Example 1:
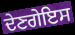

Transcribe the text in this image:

ਦੇਣਗੇਇਸ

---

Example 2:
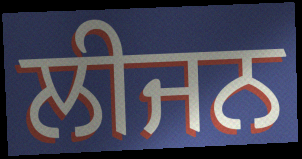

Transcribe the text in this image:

ਲੀਜਨ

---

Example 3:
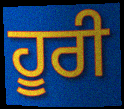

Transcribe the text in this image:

ਹੂਰੀ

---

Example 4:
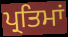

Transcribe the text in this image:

ਪ੍ਰਤਿਮਾਂ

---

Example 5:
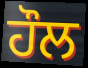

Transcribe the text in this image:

ਹੌਲ